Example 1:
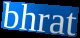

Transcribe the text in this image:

bhrat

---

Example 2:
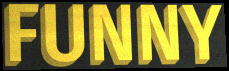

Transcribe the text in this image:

FUNNY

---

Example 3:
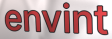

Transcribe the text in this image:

envint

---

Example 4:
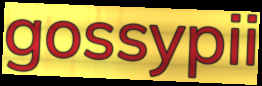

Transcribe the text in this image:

gossypii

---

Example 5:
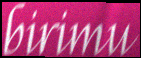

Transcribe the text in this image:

birimu